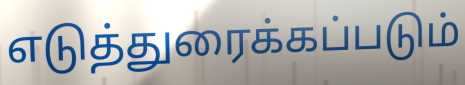
எடுத்துரைக்கப்படும்